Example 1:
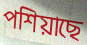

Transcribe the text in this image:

পশিয়াছে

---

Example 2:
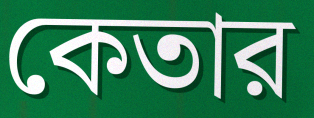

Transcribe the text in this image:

কেতার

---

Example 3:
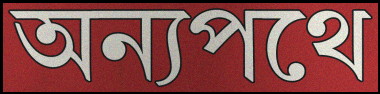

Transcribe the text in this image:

অন্যপথে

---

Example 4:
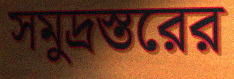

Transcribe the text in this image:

সমুদ্রস্তরের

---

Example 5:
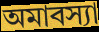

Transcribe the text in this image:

অমাবস্যা